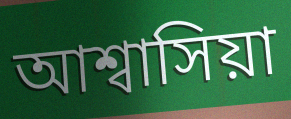
আশ্বাসিয়া